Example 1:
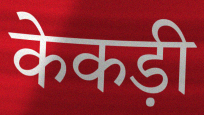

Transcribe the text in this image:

केकड़ी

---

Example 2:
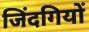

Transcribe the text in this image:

जिंदगियों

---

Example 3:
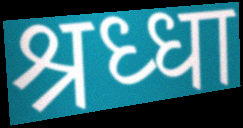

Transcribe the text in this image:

श्रध्धा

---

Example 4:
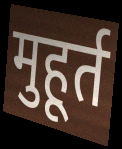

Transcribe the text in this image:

मुहूर्त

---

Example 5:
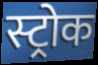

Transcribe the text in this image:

स्‍ट्रोक